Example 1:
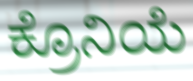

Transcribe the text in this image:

ಕ್ರೊನಿಯೆ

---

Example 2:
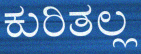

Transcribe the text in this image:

ಕುರಿತಲ್ಲ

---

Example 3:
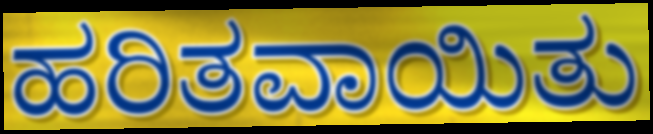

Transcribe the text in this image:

ಹರಿತವಾಯಿತು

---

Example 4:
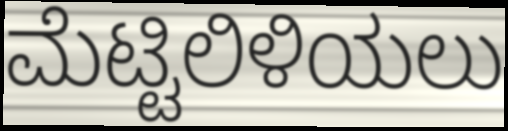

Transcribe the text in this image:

ಮೆಟ್ಟಿಲಿಳಿಯಲು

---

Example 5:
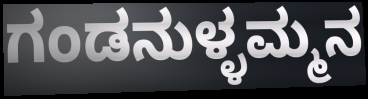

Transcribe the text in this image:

ಗಂಡನುಳ್ಳಮ್ಮನ